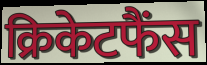
क्रिकेटफैंस